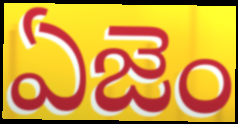
ఏజెం